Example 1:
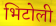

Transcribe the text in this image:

भिटोली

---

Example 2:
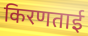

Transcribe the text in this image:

किरणताई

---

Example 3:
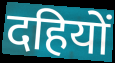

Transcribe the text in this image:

दहियों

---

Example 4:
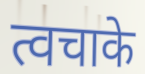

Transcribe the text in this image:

त्वचाके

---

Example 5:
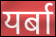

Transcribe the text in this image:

यर्बा